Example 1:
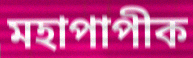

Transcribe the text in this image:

মহাপাপীক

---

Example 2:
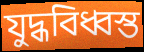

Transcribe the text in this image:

যুদ্ধবিধ্বস্ত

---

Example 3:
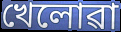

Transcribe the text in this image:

খেলোৱা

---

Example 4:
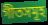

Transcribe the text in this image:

গীতসমূহ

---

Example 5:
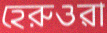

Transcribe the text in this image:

হেৰুওৱা